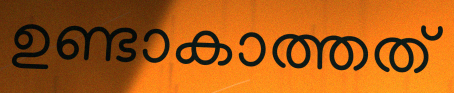
ഉണ്ടാകാത്തത്